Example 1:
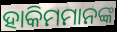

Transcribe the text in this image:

ହାକିମମାନଙ୍କ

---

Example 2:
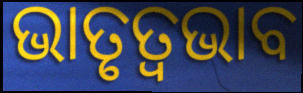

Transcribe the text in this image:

ଭାତୃତ୍ବଭାବ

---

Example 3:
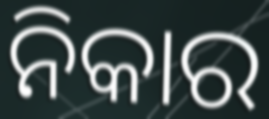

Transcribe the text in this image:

ନିକାର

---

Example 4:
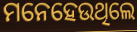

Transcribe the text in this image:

ମନେହେଉଥିଲେ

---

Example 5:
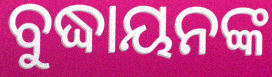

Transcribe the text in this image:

ବୁଦ୍ଧାୟନଙ୍କ